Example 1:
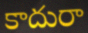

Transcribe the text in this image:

కాదురా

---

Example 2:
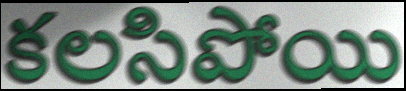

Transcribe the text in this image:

కలసిపోయి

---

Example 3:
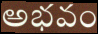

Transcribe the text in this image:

అభవం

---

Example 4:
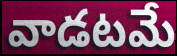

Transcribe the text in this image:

వాడటమే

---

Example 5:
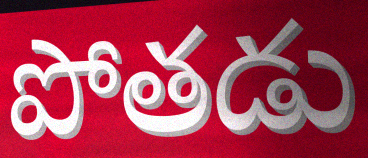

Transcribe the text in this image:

పోతడు